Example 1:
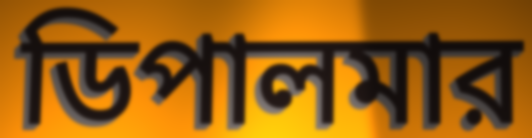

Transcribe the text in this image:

ডিপালমার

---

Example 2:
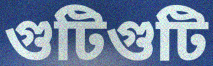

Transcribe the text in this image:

গুটিগুটি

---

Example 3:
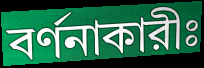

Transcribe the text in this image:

বর্ণনাকারীঃ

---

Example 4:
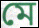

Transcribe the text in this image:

মে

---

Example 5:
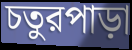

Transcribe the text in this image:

চতুরপাড়া